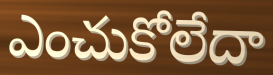
ఎంచుకోలేదా